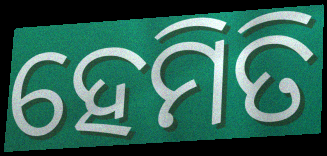
ହେମିତି